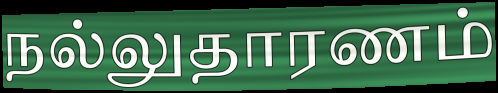
நல்லுதாரணம்